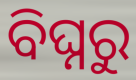
ବିଘ୍ନରୁ